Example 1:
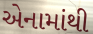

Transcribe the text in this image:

એનામાંથી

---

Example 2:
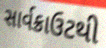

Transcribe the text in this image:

સાર્વક્રાઉટથી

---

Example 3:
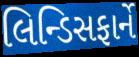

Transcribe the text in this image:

લિન્ડિસફાર્ને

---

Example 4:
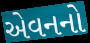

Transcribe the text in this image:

એવનનો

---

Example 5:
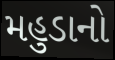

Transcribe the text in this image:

મહુડાનો